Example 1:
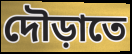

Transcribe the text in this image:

দৌড়াতে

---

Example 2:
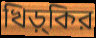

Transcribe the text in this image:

খিড়্‌কির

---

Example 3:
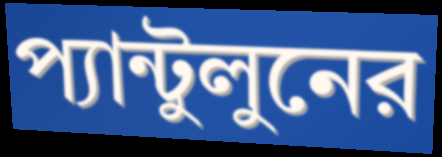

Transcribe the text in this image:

প্যান্টুলুনের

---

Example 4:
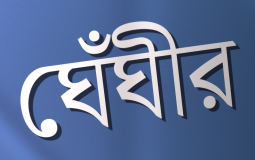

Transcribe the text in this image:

ঘেঁঘীর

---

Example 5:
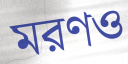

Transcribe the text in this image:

মরণও